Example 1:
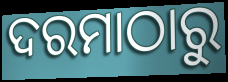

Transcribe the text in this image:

ଦରମାଠାରୁ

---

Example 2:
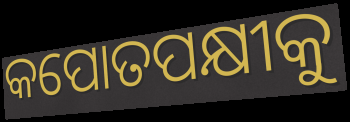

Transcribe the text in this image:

କପୋତପକ୍ଷୀକୁ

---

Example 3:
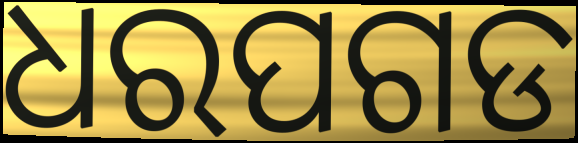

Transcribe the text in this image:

ଧରପଗଡ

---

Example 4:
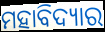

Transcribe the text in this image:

ମହାବିଦ୍ୟାର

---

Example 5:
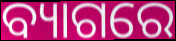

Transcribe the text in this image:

ବ୍ୟାଗରେ